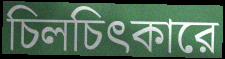
চিলচিৎকারে